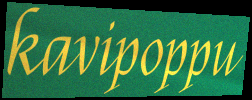
kavipoppu